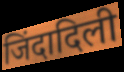
जिंदादिली